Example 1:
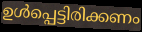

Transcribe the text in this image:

ഉൾപ്പെട്ടിരിക്കണം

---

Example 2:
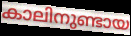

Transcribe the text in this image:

കാലിനുണ്ടായ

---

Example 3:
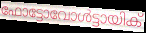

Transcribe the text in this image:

ഫോട്ടോവോൾട്ടായിക്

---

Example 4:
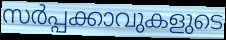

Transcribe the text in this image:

സർപ്പക്കാവുകളുടെ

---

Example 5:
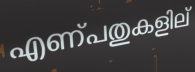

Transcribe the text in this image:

എണ്പതുകളില്